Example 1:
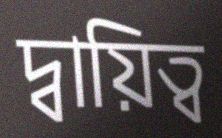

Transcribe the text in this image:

দ্বায়িত্ব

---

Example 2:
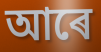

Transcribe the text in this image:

আৰে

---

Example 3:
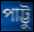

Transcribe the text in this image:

পাট্টু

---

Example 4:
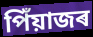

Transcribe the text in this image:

পিঁয়াজৰ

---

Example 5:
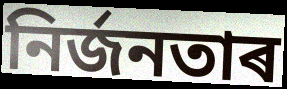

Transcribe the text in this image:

নিৰ্জনতাৰ